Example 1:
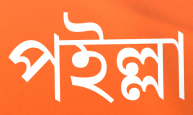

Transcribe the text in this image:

পইল্লা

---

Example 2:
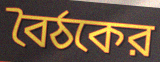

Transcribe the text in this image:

বৈঠকের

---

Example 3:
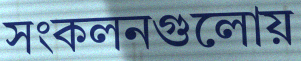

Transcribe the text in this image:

সংকলনগুলোয়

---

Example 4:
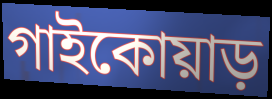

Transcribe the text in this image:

গাইকোয়াড়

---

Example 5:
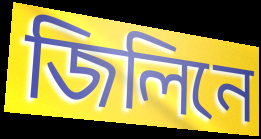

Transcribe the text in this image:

জিলিনে